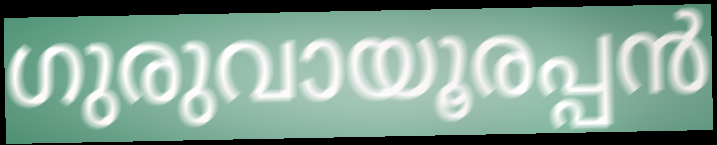
ഗുരുവായൂരപ്പൻ